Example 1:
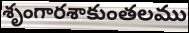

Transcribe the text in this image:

శృంగారశాకుంతలము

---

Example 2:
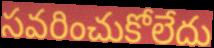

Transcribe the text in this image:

సవరించుకోలేదు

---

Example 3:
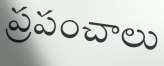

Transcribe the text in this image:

ప్రపంచాలు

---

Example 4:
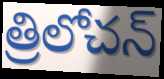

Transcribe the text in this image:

త్రిలోచన్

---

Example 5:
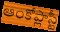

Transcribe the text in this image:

ఆంకోప్లాస్టీ